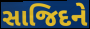
સાજિદને